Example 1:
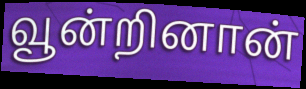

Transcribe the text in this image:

வூன்றினான்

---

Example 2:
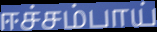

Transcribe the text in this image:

ஈச்சம்பாய்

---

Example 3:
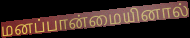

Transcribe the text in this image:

மனப்பான்மையினால்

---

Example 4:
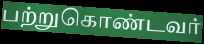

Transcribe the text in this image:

பற்றுகொண்டவர்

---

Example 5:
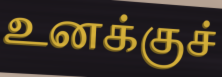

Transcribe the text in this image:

உனக்குச்